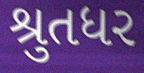
શ્રુતધર